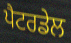
ਪੈਟਰਡੇਲ